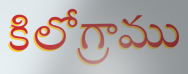
కిలోగ్రాము